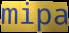
mipa